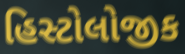
હિસ્ટોલોજીક